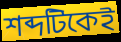
শব্দটিকেই